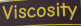
Viscosity